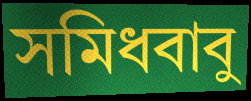
সমিধবাবু